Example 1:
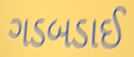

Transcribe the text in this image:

ગડબડાઈ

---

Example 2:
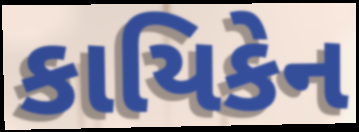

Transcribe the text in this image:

કાયિકેન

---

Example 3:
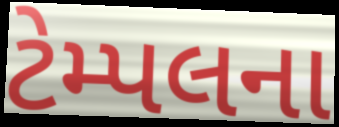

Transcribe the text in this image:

ટેમ્પલના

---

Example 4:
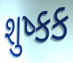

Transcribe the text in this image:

શુષ્કક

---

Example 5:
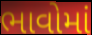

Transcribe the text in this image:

ભાવોમાં